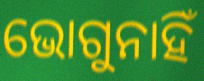
ଭୋଗୁନାହିଁ